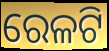
ରେଳଟି